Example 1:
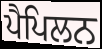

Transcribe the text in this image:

ਪੈਪਿਲਨ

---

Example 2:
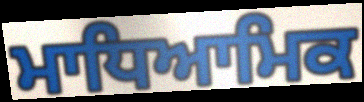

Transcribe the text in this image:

ਮਾਧਿਆਮਿਕ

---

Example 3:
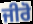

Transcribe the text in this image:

ਜੀਰੋ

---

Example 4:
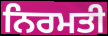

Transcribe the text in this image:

ਨਿਰਮਤੀ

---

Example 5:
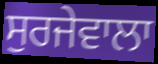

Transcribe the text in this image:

ਸੁਰਜੇਵਾਲਾ